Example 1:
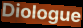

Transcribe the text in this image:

Diologue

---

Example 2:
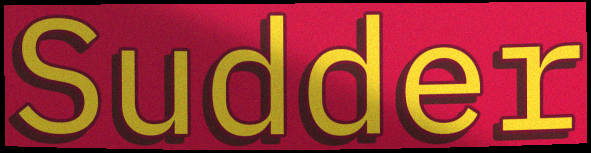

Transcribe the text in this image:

Sudder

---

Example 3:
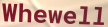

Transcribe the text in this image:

Whewell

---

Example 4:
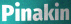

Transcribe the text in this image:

Pinakin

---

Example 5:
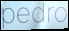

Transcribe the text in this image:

pedro